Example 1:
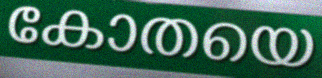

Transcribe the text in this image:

കോതയെ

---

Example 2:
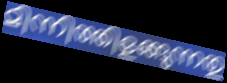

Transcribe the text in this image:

മിന്നിത്തിളങ്ങുന്നതു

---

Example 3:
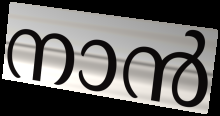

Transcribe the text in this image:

നാൻ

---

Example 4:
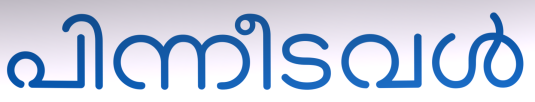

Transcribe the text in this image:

പിന്നീടവൾ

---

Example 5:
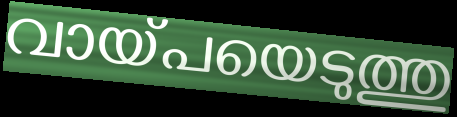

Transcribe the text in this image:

വായ്പയെടുത്തു